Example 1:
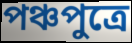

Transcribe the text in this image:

পঞ্চপুত্রে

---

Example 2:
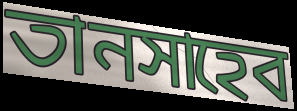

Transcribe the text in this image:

তানসাহেব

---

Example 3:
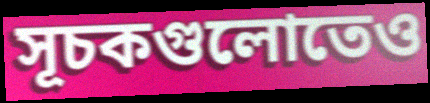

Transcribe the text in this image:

সূচকগুলোতেও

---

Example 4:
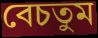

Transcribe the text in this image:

বেচতুম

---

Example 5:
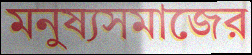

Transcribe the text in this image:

মনুষ্যসমাজের